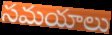
సమయాలు